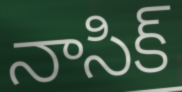
నాసిక్